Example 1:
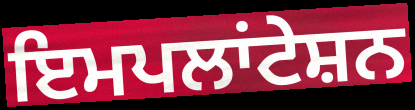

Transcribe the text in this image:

ਇਮਪਲਾਂਟੇਸ਼ਨ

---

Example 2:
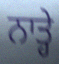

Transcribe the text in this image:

ਨਾਤ੍ਹੇ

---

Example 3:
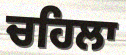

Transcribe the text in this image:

ਚਹਿਲਾ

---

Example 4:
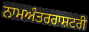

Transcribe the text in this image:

ਨਾਮਅੰਤਰਰਾਸ਼ਟਰੀ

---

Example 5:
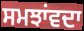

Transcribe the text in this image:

ਸਮਝਾਂਵਦਾ